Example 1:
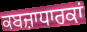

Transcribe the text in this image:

ਕਬਜ਼ਾਧਾਰਕਾਂ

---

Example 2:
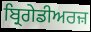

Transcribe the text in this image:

ਬ੍ਰਿਗੇਡੀਅਰਜ਼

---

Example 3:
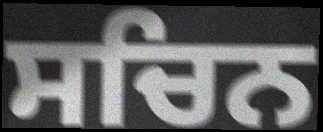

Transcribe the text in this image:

ਸਚਿਨ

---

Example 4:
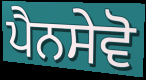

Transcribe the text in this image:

ਪੈਨਸੇਵੋ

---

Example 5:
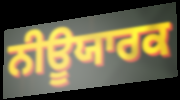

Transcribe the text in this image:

ਨੀਊਯਾਰਕ